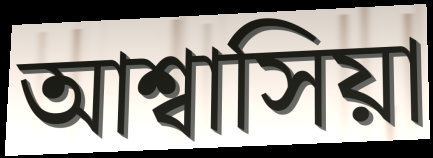
আশ্বাসিয়া